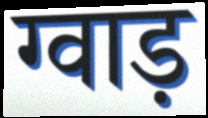
ग्वाड़